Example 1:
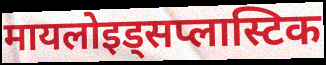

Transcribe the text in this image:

मायलोइड्सप्लास्टिक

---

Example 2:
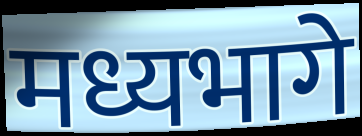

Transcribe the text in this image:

मध्यभागे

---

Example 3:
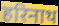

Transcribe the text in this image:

हरिनाथ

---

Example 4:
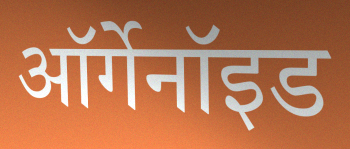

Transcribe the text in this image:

ऑर्गेनॉइड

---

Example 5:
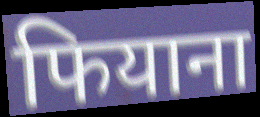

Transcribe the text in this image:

फियाना